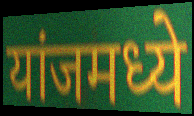
यांजमध्ये